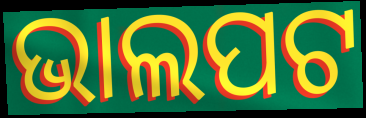
ଭାଲପଟ